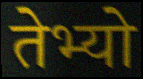
तेभ्यो